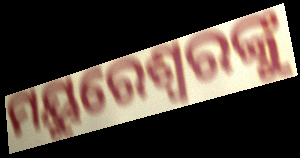
ମୟୁରେଶ୍ବରଙ୍କୁ